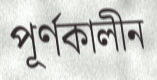
পূৰ্ণকালীন